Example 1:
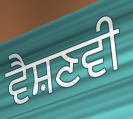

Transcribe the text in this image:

ਵੈਸ਼ਣਵੀ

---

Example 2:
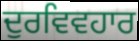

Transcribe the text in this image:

ਦੁਰਵਿਵਹਾਰ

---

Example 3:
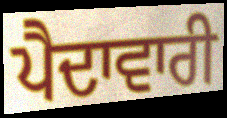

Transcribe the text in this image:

ਪੈਦਾਵਾਰੀ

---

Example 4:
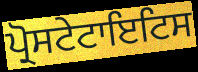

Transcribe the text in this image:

ਪ੍ਰੋਸਟੇਟਾਇਟਿਸ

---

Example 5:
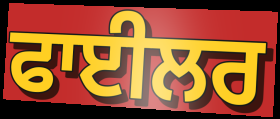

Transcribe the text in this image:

ਫਾਈਲਰ